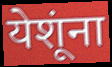
येशूंना